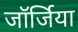
जॉर्जिया